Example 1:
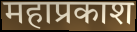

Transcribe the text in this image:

महाप्रकाश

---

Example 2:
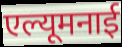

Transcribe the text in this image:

एल्यूमनाई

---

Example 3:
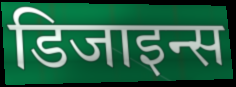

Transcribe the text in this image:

डिजाइन्स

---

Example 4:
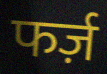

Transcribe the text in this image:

फर्ज़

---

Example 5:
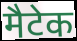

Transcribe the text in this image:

मैटेक